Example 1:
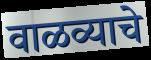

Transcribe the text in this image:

वाळव्याचे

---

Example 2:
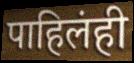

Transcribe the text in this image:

पाहिलंही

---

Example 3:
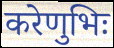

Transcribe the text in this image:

करेणुभिः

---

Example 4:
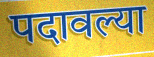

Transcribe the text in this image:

पदावल्या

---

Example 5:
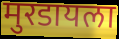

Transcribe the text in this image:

मुरडायला